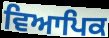
ਵਿਆਪਿਕ